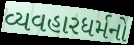
વ્યવહારધર્મનો